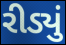
રીડ્યું